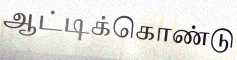
ஆட்டிக்கொண்டு